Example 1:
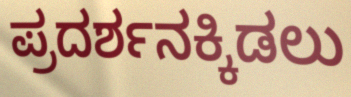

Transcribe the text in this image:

ಪ್ರದರ್ಶನಕ್ಕಿಡಲು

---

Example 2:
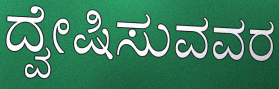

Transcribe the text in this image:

ದ್ವೇಷಿಸುವವರ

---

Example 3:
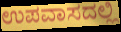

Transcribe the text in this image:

ಉಪವಾಸದಲ್ಲಿ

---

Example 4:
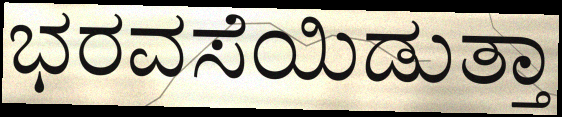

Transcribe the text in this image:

ಭರವಸೆಯಿಡುತ್ತಾ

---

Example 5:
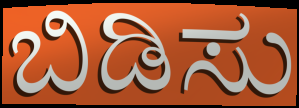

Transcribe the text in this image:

ಬಿಡಿಸು